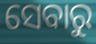
ସେବାରୁ